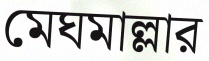
মেঘমাল্লার